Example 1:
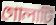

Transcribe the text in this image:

গোলাটি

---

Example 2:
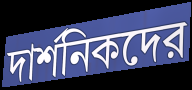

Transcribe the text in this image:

দার্শনিকদের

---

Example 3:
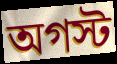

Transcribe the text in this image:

অগস্ট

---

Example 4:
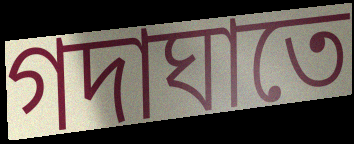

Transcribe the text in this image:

গদাঘাতে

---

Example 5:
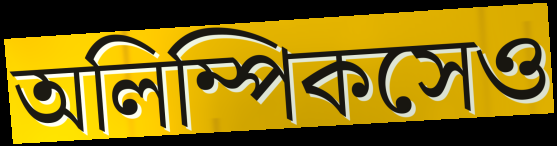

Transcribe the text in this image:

অলিম্পিকসেও